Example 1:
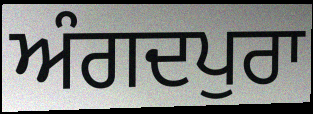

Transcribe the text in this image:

ਅੰਗਦਪੁਰਾ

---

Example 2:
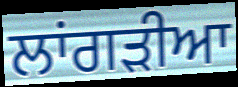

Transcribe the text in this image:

ਲਾਂਗੜੀਆ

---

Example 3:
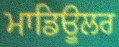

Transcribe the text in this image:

ਮਾਡਿਊਲਰ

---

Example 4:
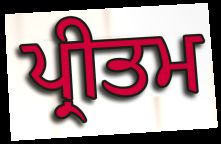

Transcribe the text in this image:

ਪ੍ਰੀਤਮ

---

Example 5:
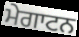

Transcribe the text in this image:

ਮੇਗਾਟਨ